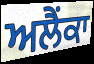
ਅਲੈਂਕਾ